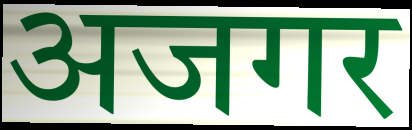
अजगर